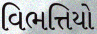
વિભત્તિયો